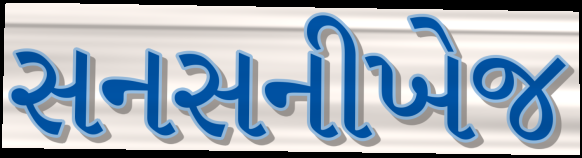
સનસનીખેજ